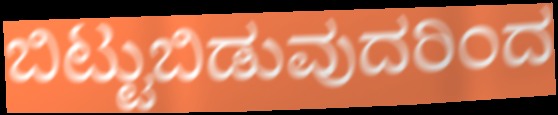
ಬಿಟ್ಟುಬಿಡುವುದರಿಂದ